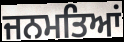
ਜਨਮਤਿਆਂ